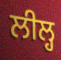
ਲੀਲ੍ਹ